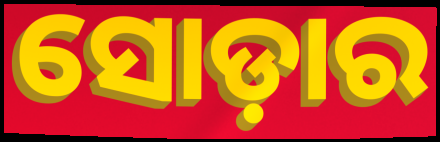
ସୋଡ଼ାର